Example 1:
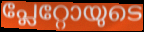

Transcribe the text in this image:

പ്ലേറ്റോയുടെ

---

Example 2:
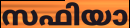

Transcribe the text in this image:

സഫിയാ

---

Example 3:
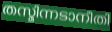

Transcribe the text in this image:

തസ്മിന്നടാനീതി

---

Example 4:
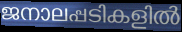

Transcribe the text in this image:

ജനാലപ്പടികളിൽ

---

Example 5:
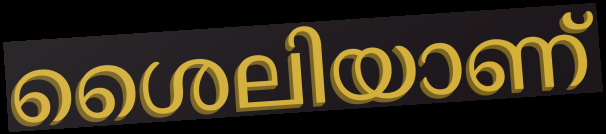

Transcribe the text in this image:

ശൈലിയാണ്